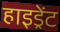
हाइड्रेंट